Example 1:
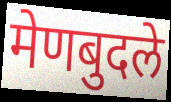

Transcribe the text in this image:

मेणबुदले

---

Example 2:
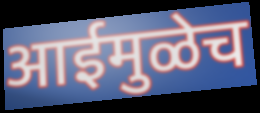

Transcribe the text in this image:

आईमुळेच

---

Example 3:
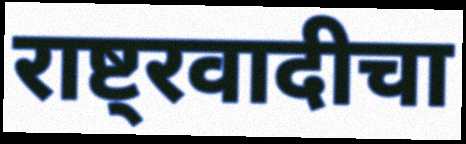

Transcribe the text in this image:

राष्ट्रवादीचा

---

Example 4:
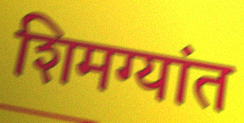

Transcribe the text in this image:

शिमग्यांत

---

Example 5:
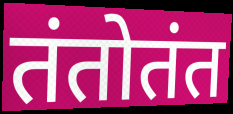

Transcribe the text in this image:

तंतोतंत